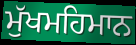
ਮੁੱਖਮਹਿਮਾਨ